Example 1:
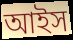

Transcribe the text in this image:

আইস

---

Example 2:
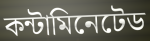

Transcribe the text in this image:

কন্টামিনেটেড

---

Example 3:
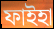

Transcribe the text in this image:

ফাইহা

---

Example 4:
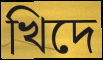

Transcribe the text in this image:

খিদে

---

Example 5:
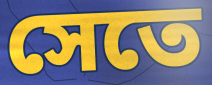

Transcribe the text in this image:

সেতে